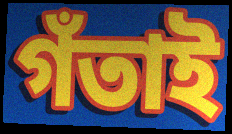
গঁতাই